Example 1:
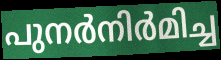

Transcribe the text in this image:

പുനർനിർമിച്ച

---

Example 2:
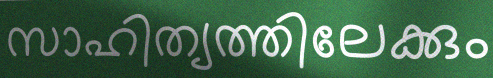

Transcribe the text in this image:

സാഹിത്യത്തിലേക്കും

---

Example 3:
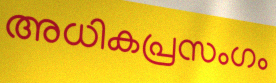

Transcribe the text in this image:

അധികപ്രസംഗം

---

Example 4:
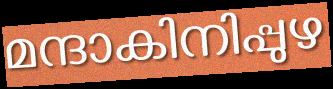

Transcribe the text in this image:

മന്ദാകിനിപ്പുഴ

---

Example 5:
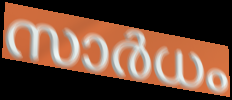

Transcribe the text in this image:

സാർധം